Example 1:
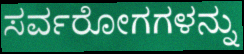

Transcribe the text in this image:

ಸರ್ವರೋಗಗಳನ್ನು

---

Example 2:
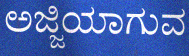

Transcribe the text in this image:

ಅಜ್ಜಿಯಾಗುವ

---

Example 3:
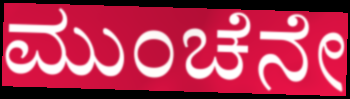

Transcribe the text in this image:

ಮುಂಚೆನೇ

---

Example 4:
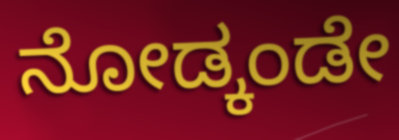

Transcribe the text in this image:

ನೋಡ್ಕಂಡೇ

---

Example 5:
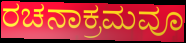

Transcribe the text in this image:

ರಚನಾಕ್ರಮವೂ